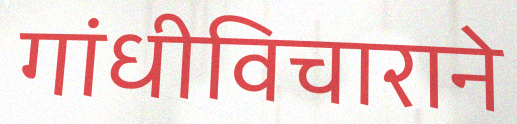
गांधीविचाराने